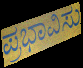
ಪ್ರಭಾವಿಸು